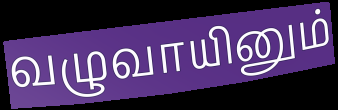
வழுவாயினும்